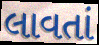
લાવતાં